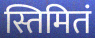
स्तिमितं